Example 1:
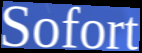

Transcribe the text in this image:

Sofort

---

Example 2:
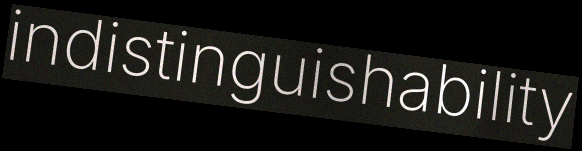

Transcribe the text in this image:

indistinguishability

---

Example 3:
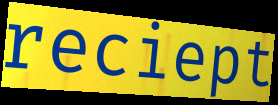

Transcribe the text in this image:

reciept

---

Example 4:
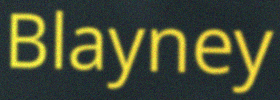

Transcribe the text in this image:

Blayney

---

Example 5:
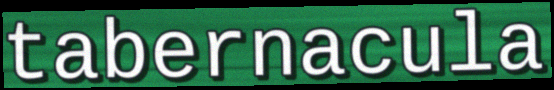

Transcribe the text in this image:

tabernacula